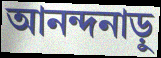
আনন্দনাড়ু